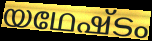
യഥേഷ്‌ടം